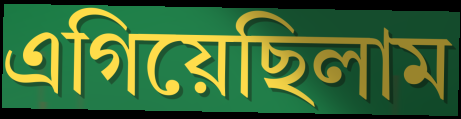
এগিয়েছিলাম